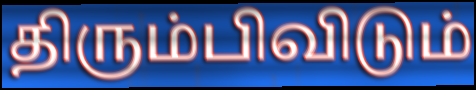
திரும்பிவிடும்